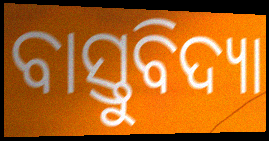
ବାସ୍ତୁବିଦ୍ୟା